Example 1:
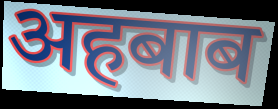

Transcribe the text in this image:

अहबाब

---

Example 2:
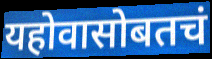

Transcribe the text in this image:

यहोवासोबतचं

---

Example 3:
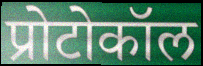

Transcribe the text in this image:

प्रोटोकॉल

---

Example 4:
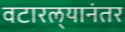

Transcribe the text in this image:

वटारल्यानंतर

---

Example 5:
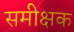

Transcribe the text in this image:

समीक्षक